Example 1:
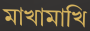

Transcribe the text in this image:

মাখামাখি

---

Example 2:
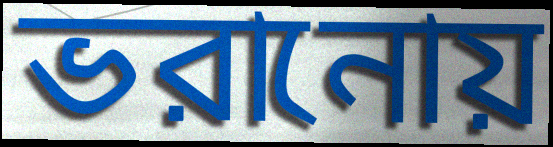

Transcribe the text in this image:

ভরানোয়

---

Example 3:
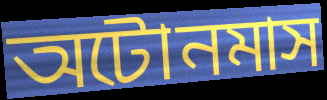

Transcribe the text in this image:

অটোনমাস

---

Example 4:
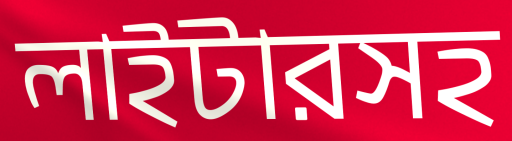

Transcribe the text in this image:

লাইটারসহ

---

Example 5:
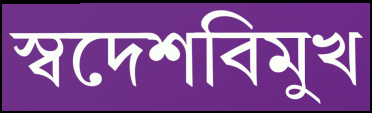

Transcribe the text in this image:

স্বদেশবিমুখ